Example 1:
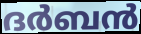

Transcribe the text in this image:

ദർബൻ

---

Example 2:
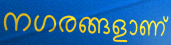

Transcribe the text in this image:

നഗരങ്ങളാണ്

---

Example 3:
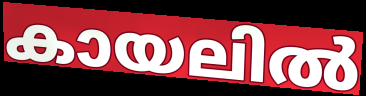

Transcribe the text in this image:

കായലിൽ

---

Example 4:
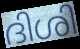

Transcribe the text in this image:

ദിശി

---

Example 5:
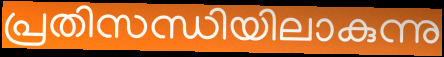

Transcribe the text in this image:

പ്രതിസന്ധിയിലാകുന്നു